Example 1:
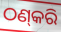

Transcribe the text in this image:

ଠଣ୍‌କରି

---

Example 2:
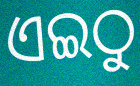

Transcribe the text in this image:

ଏଇଠୁ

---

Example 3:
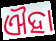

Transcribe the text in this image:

ଐହା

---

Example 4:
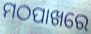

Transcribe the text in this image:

ମଠପାଖରେ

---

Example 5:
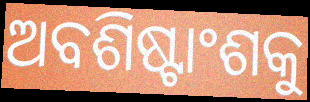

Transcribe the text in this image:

ଅବଶିଷ୍ଟାଂଶକୁ